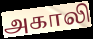
அகாலி